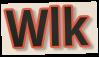
Wlk